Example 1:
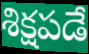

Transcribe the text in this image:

శిక్షపడే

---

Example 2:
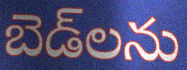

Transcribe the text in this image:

బెడ్‌లను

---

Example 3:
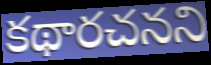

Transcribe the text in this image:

కథారచనని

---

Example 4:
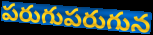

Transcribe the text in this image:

పరుగుపరుగున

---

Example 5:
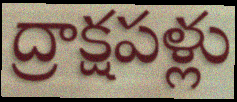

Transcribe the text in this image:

ద్రాక్షపళ్లు